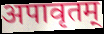
अपावृतम्